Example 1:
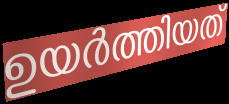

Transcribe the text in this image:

ഉയർത്തിയത്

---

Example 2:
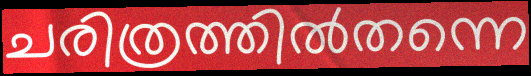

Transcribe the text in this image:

ചരിത്രത്തിൽതന്നെ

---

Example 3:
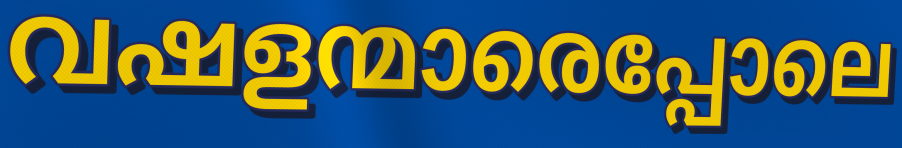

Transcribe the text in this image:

വഷളന്മാരെപ്പോലെ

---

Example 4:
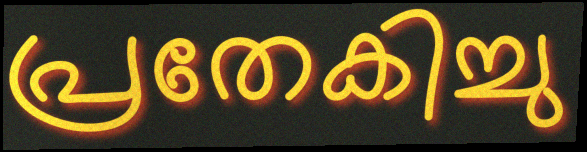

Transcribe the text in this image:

പ്രതേകിച്ചു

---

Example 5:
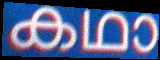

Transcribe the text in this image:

കഥാ